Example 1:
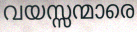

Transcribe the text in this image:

വയസ്സന്മാരെ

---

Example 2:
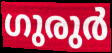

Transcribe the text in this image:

ഗുരുർ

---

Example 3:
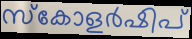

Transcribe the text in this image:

സ്കോളർഷിപ്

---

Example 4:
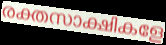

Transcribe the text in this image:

രക്തസാക്ഷികളേ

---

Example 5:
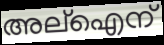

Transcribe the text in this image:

അല്ഐന്